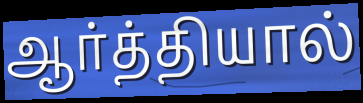
ஆர்த்தியால்